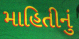
માહિતીનું